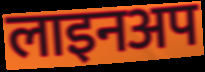
लाइनअप